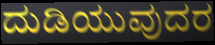
ದುಡಿಯುವುದರ